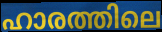
ഹാരത്തിലെ